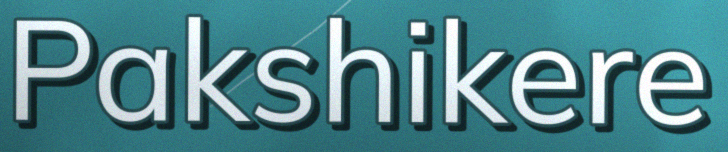
Pakshikere